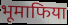
भूमाफिया